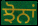
ਝੋਨਾਂ